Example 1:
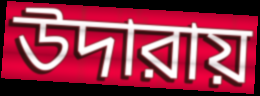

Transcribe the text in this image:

উদারায়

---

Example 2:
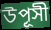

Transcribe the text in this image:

উপূসী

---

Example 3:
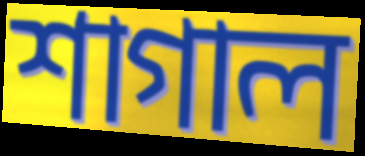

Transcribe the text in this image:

শাগাল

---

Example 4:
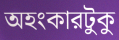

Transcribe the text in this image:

অহংকারটুকু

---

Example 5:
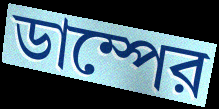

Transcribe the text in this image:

ডাম্পের